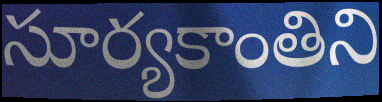
సూర్యకాంతిని